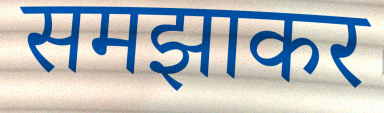
समझाकर